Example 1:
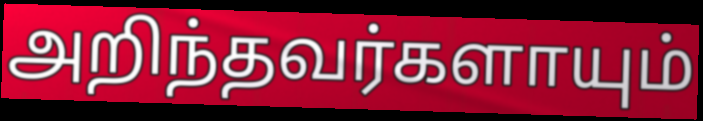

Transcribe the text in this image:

அறிந்தவர்களாயும்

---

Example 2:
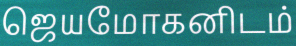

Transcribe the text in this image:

ஜெயமோகனிடம்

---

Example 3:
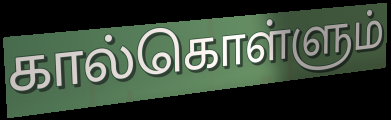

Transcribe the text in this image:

கால்கொள்ளும்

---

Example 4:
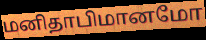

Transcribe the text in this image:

மனிதாபிமானமோ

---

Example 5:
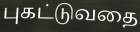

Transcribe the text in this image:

புகட்டுவதை